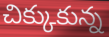
చిక్కుకున్న